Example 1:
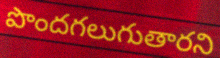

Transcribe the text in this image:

పొందగలుగుతారని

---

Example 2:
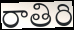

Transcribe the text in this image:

రాతిరి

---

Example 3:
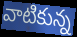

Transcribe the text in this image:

వాటికున్న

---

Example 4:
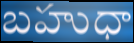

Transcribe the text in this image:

బహుధా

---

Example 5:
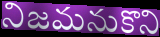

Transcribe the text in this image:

నిజమనుకొని